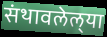
संथावलेल्या